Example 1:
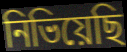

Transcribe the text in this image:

নিভিয়েছি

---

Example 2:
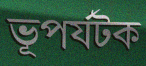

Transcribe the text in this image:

ভূপর্যটক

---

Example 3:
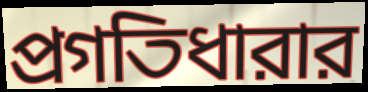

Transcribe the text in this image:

প্রগতিধারার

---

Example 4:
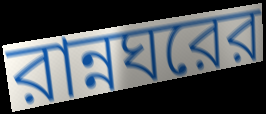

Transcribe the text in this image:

রান্নঘরের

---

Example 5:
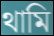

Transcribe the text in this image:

থামি